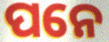
ପନେ